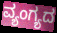
ವ್ಯಂಗ್ಯದ